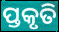
ପ୍ତକୃତି